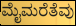
ಮೈಮರೆತೆವು